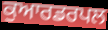
ਕੁਆਰਡਰਪਲ